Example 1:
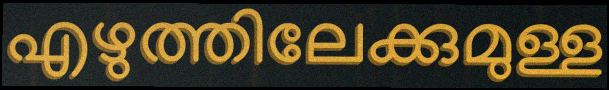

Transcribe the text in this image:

എഴുത്തിലേക്കുമുള്ള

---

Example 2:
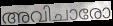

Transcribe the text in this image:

അവിചാരോ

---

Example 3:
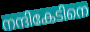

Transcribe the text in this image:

നന്ദികേടിനെ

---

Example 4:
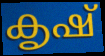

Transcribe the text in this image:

കൃഷ്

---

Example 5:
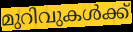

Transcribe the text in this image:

മുറിവുകൾക്ക്